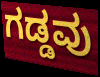
ಗಡ್ಡವು